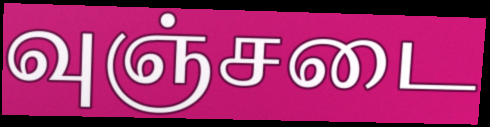
வுஞ்சடை